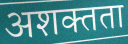
अशक्‍तता